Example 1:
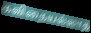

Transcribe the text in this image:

கவிதையல்லாத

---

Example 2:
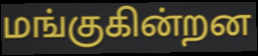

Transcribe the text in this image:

மங்குகின்றன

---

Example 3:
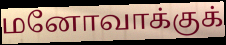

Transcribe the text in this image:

மனோவாக்குக்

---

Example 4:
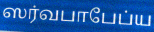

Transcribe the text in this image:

ஸர்வபாபேப்ய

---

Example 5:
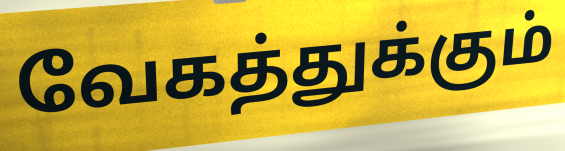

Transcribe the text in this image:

வேகத்துக்கும்